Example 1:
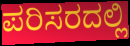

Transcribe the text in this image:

ಪರಿಸರದಲ್ಲಿ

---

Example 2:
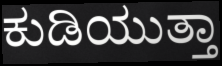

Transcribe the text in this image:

ಕುಡಿಯುತ್ತಾ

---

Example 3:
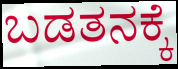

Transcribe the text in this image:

ಬಡತನಕ್ಕೆ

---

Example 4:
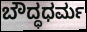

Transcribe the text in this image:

ಬೌದ್ಧಧರ್ಮ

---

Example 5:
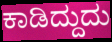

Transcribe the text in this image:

ಕಾಡಿದ್ದುದು